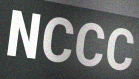
NCCC